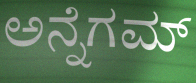
ಅನ್ನೆಗಮ್